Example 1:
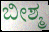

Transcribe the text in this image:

ಬೀಶ್ಮ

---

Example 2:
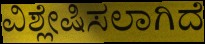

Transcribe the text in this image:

ವಿಶ್ಲೇಷಿಸಲಾಗಿದೆ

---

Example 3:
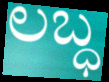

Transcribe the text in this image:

ಲಬ್ಧ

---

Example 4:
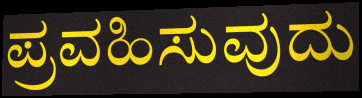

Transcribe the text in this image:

ಪ್ರವಹಿಸುವುದು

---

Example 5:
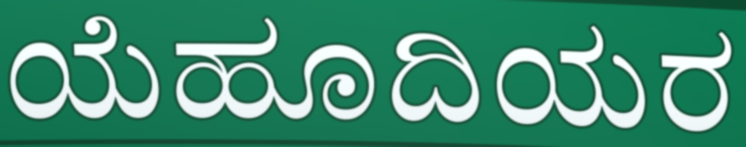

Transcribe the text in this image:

ಯೆಹೂದಿಯರ